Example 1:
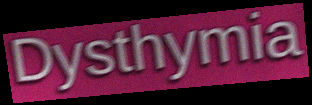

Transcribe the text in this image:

Dysthymia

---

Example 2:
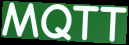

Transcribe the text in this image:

MQTT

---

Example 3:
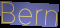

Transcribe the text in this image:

Bern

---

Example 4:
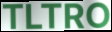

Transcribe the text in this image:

TLTRO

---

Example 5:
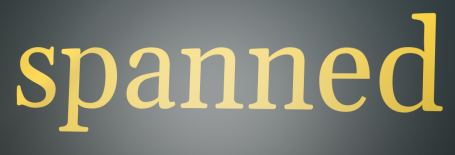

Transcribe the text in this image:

spanned